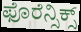
ಫೊರೆನ್ಸಿಕ್ಸ್